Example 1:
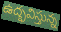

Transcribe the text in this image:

ఉద్భవిస్తున్న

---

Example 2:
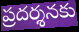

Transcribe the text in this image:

ప్రదర్శనకు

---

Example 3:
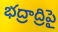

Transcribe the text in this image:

భద్రాద్రిపై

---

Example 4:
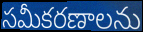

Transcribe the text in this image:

సమీకరణాలను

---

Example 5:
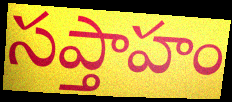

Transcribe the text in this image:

సప్తాహం